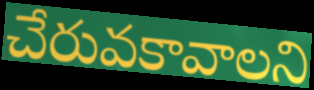
చేరువకావాలని